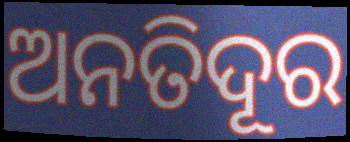
ଅନତିଦୂର